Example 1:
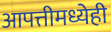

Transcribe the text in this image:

आपत्तीमध्येही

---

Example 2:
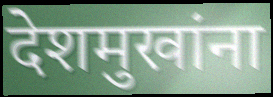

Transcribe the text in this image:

देशमुखांना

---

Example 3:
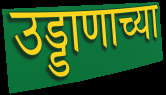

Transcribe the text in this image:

उड्डाणाच्या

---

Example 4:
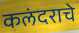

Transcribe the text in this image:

कलंदराचे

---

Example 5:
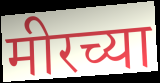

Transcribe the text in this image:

मीरच्या